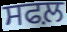
ਸਫਲ਼